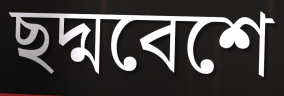
ছদ্মবেশে